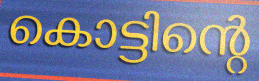
കൊട്ടിന്റെ